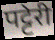
पट्टेरी